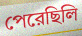
পেরেছিলি